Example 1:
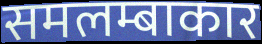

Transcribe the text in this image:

समलम्बाकार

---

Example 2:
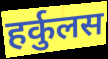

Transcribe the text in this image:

हर्कुलस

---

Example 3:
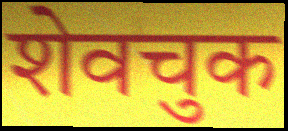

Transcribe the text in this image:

शेवचुक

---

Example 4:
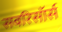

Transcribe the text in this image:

सबरिसॉर्स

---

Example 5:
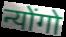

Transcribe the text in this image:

न्योंगो